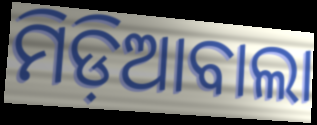
ମିଡ଼ିଆବାଲା